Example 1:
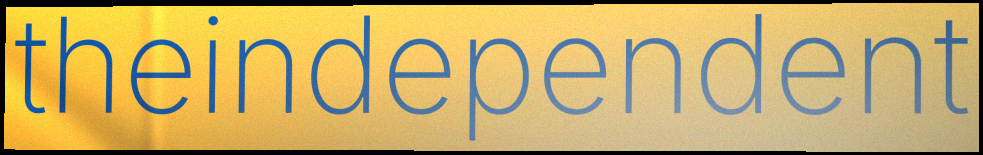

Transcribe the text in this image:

theindependent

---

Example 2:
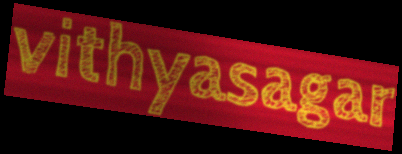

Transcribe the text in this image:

vithyasagar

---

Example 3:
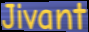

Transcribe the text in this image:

Jivant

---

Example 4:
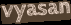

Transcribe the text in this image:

vyasan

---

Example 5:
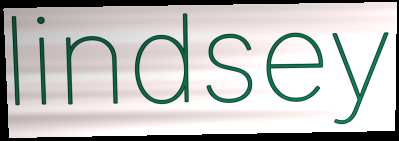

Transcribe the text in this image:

lindsey